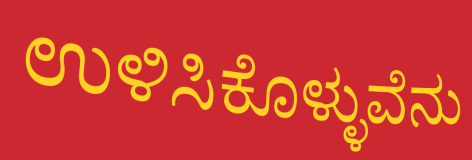
ಉಳಿಸಿಕೊಳ್ಳುವೆನು